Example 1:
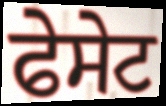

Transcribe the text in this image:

ਫੇਸੇਟ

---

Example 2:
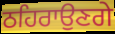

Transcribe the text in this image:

ਠਹਿਰਾਉਣਗੇ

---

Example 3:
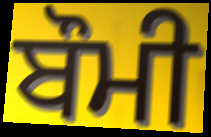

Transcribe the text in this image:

ਬੌਮੀ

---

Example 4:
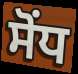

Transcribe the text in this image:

ਸੋਂਧ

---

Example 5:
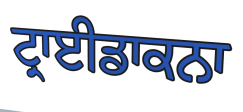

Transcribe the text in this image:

ਟ੍ਰਾਈਡਾਕਨਾ